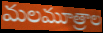
మలమూత్రాల